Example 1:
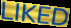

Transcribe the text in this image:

LIKED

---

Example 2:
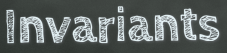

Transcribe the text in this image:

Invariants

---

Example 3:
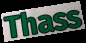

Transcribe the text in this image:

Thass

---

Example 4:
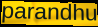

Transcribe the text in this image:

parandhu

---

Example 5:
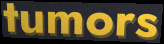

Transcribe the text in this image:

tumors